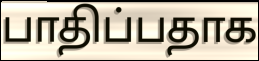
பாதிப்பதாக